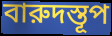
বারুদস্তূপ